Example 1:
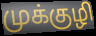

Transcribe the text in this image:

முக்குழி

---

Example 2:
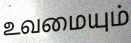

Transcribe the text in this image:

உவமையும்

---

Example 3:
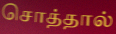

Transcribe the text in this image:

சொத்தால்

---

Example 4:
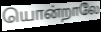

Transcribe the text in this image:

யொன்றாலே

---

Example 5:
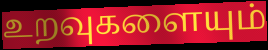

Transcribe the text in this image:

உறவுகளையும்